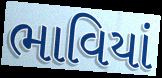
ભાવિયાં